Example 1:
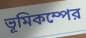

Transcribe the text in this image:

ভূমিকম্পের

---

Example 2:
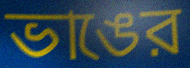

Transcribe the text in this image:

ভাঙের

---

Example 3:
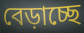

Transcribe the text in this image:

বেড়াচ্ছে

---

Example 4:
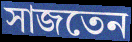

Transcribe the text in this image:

সাজতেন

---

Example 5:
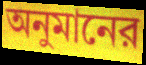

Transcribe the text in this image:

অনুমানের